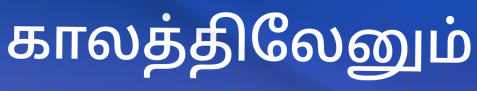
காலத்திலேனும்